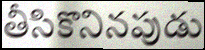
తీసికొనినపుడు